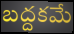
బద్దకమే